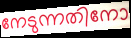
നേടുന്നതിനോ